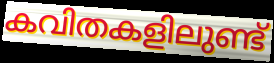
കവിതകളിലുണ്ട്